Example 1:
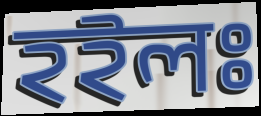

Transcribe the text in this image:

হইলঃ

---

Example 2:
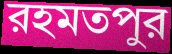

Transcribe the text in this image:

রহমতপুর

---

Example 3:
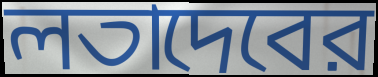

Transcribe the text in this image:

লতাদেবের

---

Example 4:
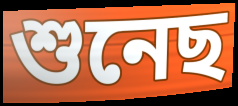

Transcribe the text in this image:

শুনেছ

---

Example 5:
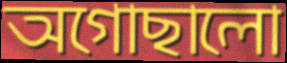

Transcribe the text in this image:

অগোছালো